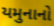
યમુનાનો